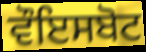
ਵੌਇਸਬੋਟ